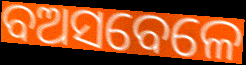
ବଅସବେଳେ